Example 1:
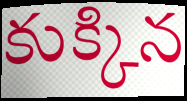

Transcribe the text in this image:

కుక్కిన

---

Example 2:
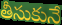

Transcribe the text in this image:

తీసుకునే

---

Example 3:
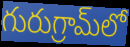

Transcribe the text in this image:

గురుగ్రామ్‌లో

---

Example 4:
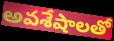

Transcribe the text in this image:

అవశేషాలతో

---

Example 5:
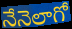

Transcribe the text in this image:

నేనెలాగో